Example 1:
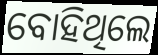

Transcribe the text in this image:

ବୋହିଥିଲେ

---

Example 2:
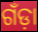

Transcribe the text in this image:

ଗଁଡ଼ା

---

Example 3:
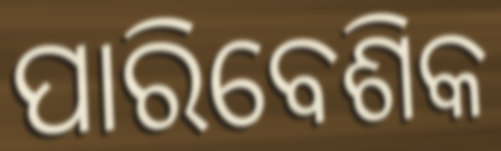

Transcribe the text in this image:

ପାରିବେଶିକ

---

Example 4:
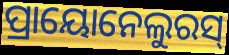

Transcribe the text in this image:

ପ୍ରାୟୋନେଲୁରସ୍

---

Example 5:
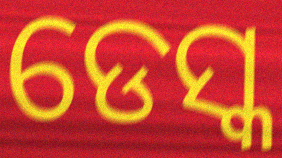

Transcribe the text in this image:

ଡେସ୍କ